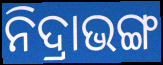
ନିଦ୍ରାଭଙ୍ଗ